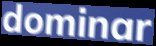
dominar